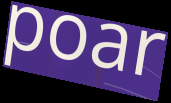
poar